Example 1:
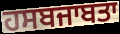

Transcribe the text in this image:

ਹਸਬਜਾਬਤਾ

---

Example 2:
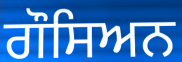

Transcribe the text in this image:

ਗੌਸਿਅਨ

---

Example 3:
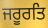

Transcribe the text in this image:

ਜਰੂਰਤਿ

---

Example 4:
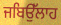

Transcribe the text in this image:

ਜਬਿਉੱਲਾਹ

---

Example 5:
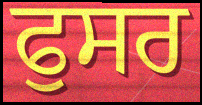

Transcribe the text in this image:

ਫੁਸਰ